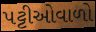
પટ્ટીઓવાળો